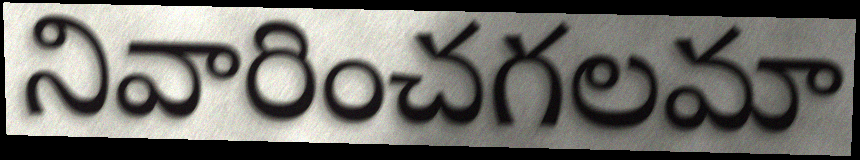
నివారించగలమా